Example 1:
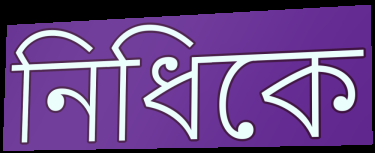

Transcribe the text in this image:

নিধিকে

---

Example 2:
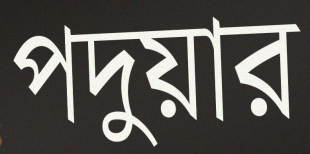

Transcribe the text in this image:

পদুয়ার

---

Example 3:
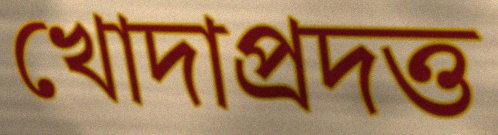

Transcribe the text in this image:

খোদাপ্রদত্ত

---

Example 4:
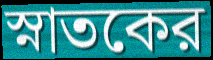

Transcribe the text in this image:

স্নাতকের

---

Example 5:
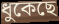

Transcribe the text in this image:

ধুকেছে